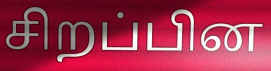
சிறப்பின